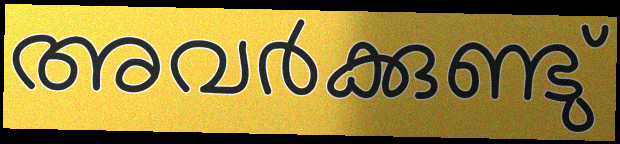
അവർക്കുണ്ടു്